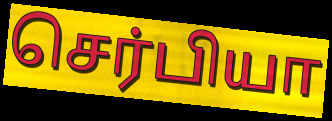
செர்பியா